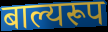
बाल्यरूप